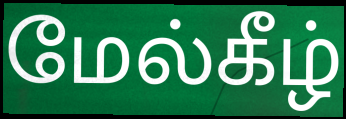
மேல்கீழ்